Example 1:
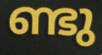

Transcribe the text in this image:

ണ്ടു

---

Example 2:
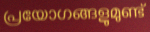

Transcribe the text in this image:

പ്രയോഗങ്ങളുമുണ്ട്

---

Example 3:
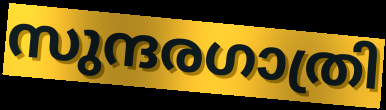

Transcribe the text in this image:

സുന്ദരഗാത്രി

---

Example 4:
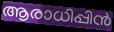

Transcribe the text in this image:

ആരാധിപ്പിൻ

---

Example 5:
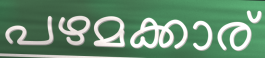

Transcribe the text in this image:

പഴമക്കാര്